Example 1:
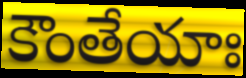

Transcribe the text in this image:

కౌంతేయాః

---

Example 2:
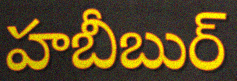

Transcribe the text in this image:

హబీబుర్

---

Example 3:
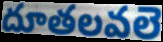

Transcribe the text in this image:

దూతలవలె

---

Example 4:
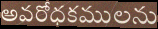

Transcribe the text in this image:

అవరోధకములను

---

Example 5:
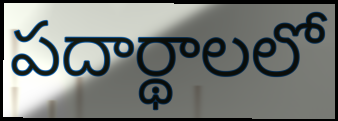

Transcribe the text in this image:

పదార్థాలలో